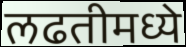
लढतीमध्ये